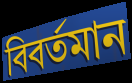
বিবর্তমান